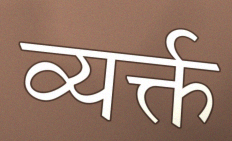
व्यर्क्त